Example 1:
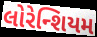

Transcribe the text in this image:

લોરેન્શિયમ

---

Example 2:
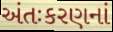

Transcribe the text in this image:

અંતઃકરણનાં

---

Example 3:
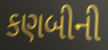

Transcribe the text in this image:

કણબીની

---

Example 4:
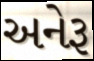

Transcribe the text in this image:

અનેરૂ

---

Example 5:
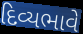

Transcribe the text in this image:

દિવ્યભાવે